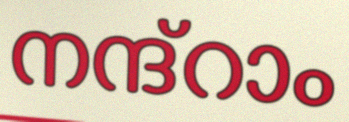
നന്ദ്റാം